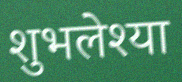
शुभलेश्या